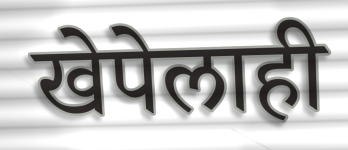
खेपेलाही